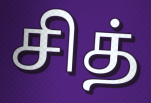
சித்